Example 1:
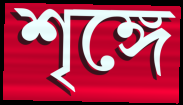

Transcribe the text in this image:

শৃঙ্গে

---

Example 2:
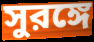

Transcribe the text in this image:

সুরঙ্গে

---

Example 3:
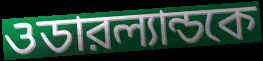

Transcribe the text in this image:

ওডারল্যান্ডকে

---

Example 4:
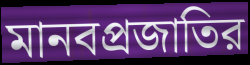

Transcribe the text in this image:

মানবপ্রজাতির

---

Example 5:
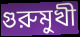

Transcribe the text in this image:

গুরুমুখী